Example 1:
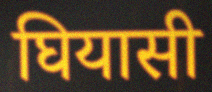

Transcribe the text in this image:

घियासी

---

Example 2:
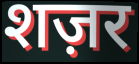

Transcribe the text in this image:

शज़र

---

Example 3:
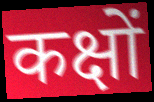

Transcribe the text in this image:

कक्षों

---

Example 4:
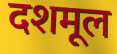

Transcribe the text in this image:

दशमूल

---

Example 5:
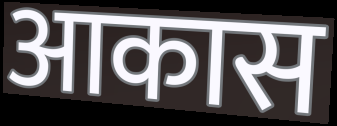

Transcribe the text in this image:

आकास